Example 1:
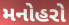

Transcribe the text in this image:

મનોહરો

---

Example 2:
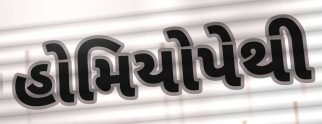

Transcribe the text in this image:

હોમિયોપેથી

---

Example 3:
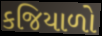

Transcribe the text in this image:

કજિયાળો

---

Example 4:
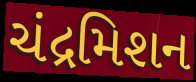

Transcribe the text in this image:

ચંદ્રમિશન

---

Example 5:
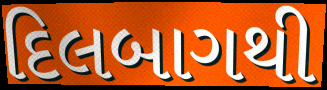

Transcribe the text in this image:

દિલબાગથી